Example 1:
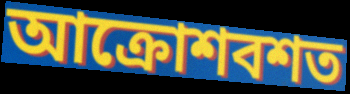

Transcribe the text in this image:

আক্রোশবশত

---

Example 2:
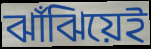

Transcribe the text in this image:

ঝাঁঝিয়েই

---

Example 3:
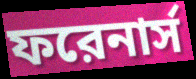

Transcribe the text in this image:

ফরেনার্স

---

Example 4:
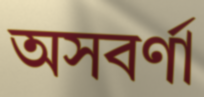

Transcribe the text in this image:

অসবর্ণা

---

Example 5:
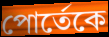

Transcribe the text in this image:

পোর্তেকে